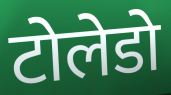
टोलेडो